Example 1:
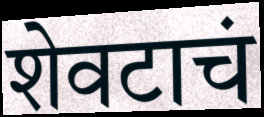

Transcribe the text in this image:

शेवटाचं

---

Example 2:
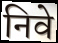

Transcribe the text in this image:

निवे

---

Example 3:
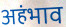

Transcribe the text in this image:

अहंभाव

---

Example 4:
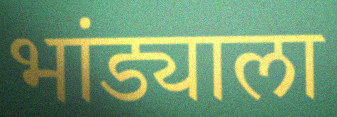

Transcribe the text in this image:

भांड्याला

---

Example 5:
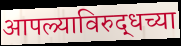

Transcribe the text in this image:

आपल्याविरुद्धच्या